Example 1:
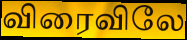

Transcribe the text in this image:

விரைவிலே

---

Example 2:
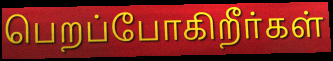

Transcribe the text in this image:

பெறப்போகிறீர்கள்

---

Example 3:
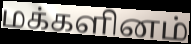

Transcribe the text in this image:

மக்களினம்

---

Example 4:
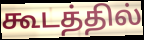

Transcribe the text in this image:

கூடத்தில்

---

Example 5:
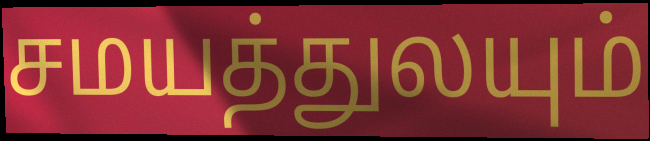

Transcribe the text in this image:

சமயத்துலயும்